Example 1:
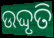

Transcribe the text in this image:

ଉଦ୍ଦୃତି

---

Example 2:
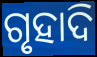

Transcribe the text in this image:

ଗୃହାଦି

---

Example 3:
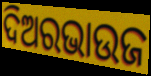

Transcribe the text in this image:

ଦିଅରଭାଉଜ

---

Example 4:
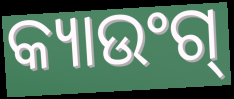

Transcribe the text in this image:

କ୍ୟାଉଂଗ୍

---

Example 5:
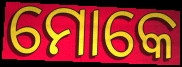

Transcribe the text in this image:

ମୋକେ